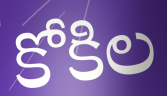
కోకిల